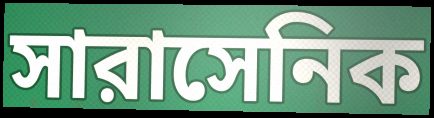
সারাসেনিক